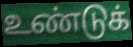
உண்டுக்